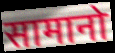
सामानो